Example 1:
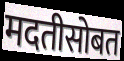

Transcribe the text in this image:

मदतीसोबत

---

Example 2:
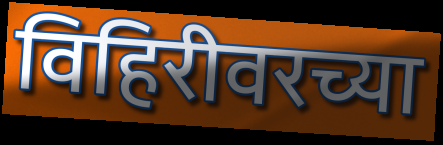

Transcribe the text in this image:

विहिरीवरच्या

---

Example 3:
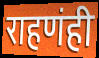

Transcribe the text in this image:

राहणंही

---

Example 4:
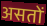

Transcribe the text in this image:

असतों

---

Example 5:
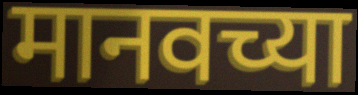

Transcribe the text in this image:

मानवच्या